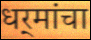
धर्मांचा